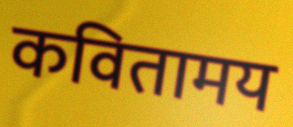
कवितामय